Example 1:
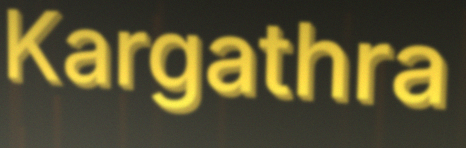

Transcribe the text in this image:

Kargathra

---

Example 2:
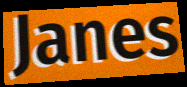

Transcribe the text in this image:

Janes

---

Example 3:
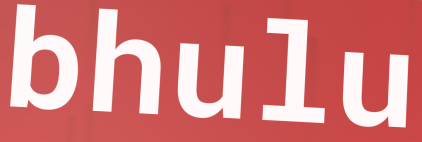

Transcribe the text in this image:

bhulu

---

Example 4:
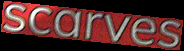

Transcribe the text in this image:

scarves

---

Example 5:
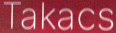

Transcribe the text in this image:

Takacs